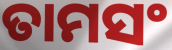
ତାମସଂ